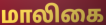
மாலிகை